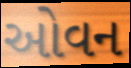
ઓવન